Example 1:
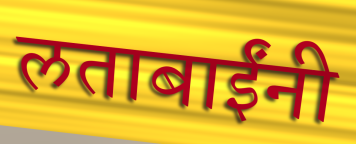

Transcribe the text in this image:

लताबाईंनी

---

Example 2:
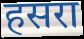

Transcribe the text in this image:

हसरा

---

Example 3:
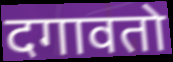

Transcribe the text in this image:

दगावतो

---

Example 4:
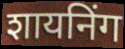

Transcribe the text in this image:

शायनिंग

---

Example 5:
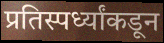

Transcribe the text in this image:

प्रतिस्पर्ध्यांकडून